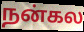
நன்கல